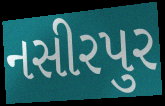
નસીરપુર